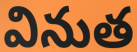
వినుత